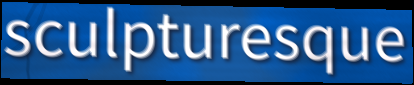
sculpturesque